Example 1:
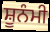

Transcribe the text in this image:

ਸ਼ੂਨੰਮੀ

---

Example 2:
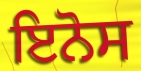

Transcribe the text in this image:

ਇਨੋਸ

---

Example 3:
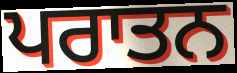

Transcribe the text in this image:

ਪਰਾਤਨ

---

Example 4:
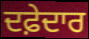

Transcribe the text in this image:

ਦਫ਼ੇਦਾਰ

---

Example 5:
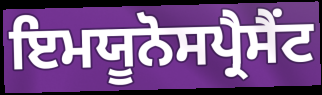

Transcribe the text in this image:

ਇਮਯੂਨੋਸਪ੍ਰੈਸੈਂਟ